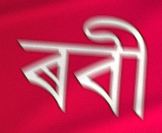
ৰবী